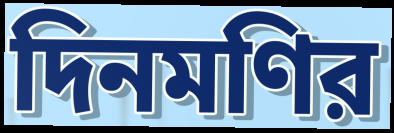
দিনমণির